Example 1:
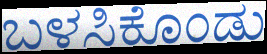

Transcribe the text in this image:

ಬಳಸಿಕೊಂಡು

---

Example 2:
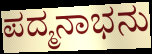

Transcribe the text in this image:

ಪದ್ಮನಾಭನು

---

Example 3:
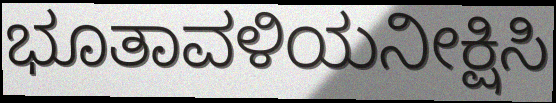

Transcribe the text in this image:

ಭೂತಾವಳಿಯನೀಕ್ಷಿಸಿ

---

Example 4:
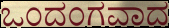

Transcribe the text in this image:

ಒಂದಂಗವಾದ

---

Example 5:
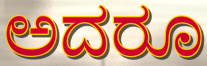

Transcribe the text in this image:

ಅದರೂ